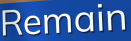
Remain